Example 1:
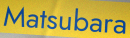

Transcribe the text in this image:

Matsubara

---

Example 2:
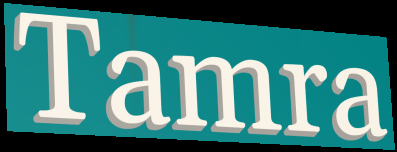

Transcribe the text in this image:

Tamra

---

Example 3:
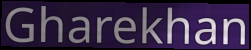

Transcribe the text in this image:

Gharekhan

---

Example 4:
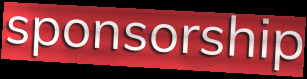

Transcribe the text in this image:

sponsorship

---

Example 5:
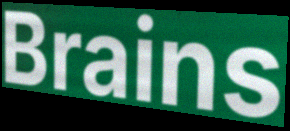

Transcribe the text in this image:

Brains